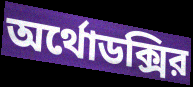
অর্থোডক্সির